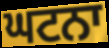
ਘਟਨਾ